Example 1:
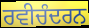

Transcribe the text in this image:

ਰਵੀਚੰਦਰਨ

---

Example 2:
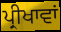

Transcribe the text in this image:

ਪ੍ਰੀਖਾਵਾਂ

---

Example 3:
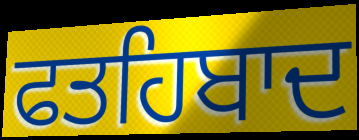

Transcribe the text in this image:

ਫਤਹਿਬਾਦ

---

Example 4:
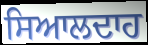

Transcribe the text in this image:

ਸਿਆਲਦਾਹ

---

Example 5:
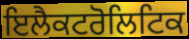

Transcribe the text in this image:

ਇਲੈਕਟਰੋਲਿਟਿਕ